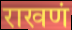
राखणं